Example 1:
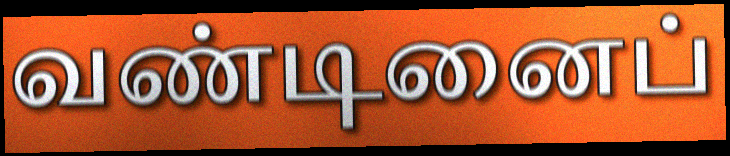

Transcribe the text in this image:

வண்டினைப்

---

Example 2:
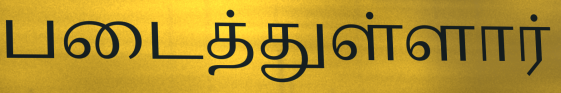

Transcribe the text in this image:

படைத்துள்ளார்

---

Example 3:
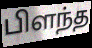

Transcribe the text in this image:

பிளந்த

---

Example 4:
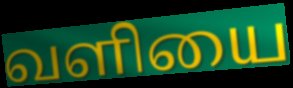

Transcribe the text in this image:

வளியை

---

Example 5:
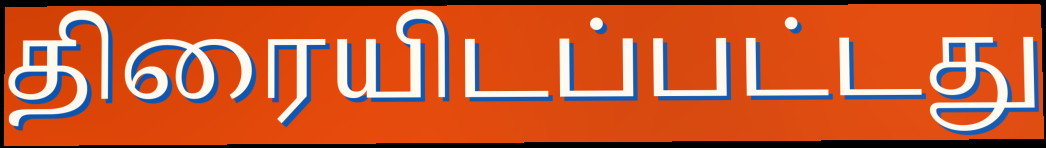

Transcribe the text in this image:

திரையிடப்பட்டது